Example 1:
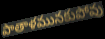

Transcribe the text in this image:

పాతాళమునకుపోవు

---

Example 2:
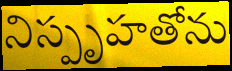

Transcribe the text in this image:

నిస్పృహతోను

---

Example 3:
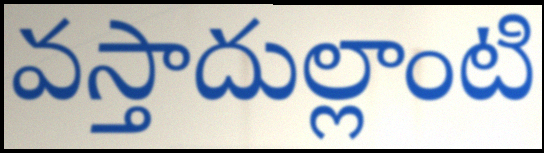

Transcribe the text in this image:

వస్తాదుల్లాంటి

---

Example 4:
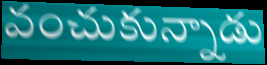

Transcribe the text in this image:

వంచుకున్నాడు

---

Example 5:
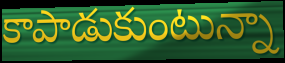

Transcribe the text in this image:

కాపాడుకుంటున్నా